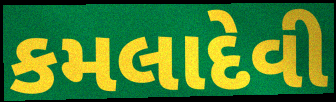
કમલાદેવી